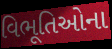
વિભૂતિઓના